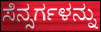
ಸೆನ್ಸರ್ಗಳನ್ನು